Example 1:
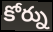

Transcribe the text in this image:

కోర్ను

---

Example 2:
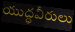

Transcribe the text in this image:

యుద్ధవీరులు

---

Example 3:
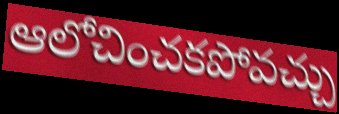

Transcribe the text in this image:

ఆలోచించకపోవచ్చు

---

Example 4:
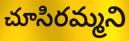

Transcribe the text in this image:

చూసిరమ్మని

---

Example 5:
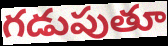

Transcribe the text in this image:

గడుపుతూ